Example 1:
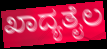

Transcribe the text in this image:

ಖಾದ್ಯತೈಲ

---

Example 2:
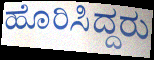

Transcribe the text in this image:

ಹೊರಿಸಿದ್ದರು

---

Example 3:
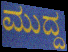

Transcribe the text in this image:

ಮುದ್ದ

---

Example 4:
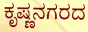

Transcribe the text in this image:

ಕೃಷ್ಣನಗರದ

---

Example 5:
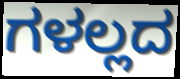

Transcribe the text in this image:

ಗಳಲ್ಲದ